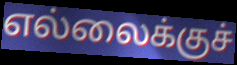
எல்லைக்குச்